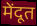
मेंदूत